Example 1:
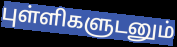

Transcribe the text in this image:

புள்ளிகளுடனும்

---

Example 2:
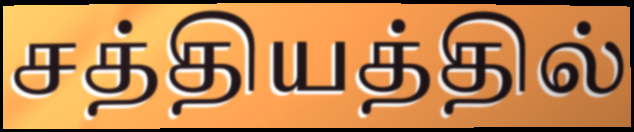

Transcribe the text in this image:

சத்தியத்தில்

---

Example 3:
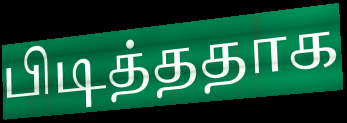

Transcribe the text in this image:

பிடித்ததாக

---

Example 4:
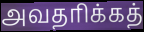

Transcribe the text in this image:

அவதரிக்கத்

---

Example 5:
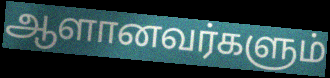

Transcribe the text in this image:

ஆளானவர்களும்